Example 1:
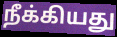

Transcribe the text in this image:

நீக்கியது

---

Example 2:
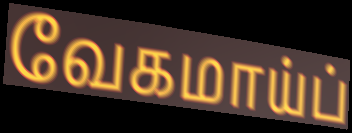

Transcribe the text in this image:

வேகமாய்ப்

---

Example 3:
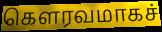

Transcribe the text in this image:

கௌரவமாகச்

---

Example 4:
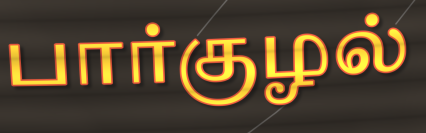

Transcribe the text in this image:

பார்குழல்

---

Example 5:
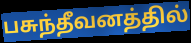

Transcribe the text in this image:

பசுந்தீவனத்தில்